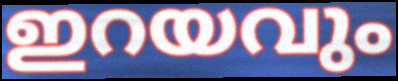
ഇറയവും